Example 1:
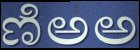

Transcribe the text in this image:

ణిఅఅ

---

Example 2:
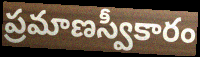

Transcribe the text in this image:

ప్రమాణస్వీకారం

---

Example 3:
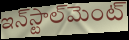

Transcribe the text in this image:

ఇన్‌స్టాల్‌మెంట్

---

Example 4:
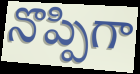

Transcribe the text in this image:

నొప్పిగా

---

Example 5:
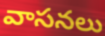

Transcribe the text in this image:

వాసనలు